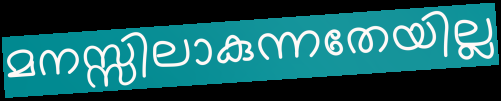
മനസ്സിലാകുന്നതേയില്ല